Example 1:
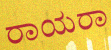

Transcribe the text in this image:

ರಾಯರಾ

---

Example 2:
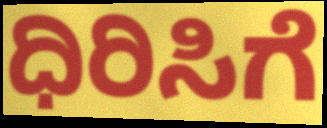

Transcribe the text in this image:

ಧಿರಿಸಿಗೆ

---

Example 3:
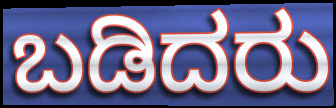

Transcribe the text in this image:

ಬಡಿದರು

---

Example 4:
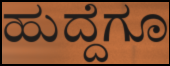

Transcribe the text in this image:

ಹುದ್ದೆಗೂ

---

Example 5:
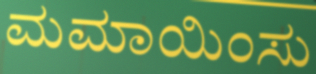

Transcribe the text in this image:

ಮಮಾಯಿಂಸು